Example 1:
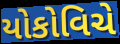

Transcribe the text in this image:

યોકોવિચે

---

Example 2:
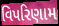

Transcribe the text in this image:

વિપરિણામ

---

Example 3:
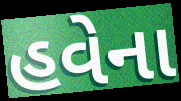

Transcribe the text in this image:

હવેના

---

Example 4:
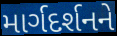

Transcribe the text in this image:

માર્ગદર્શનને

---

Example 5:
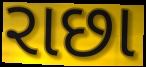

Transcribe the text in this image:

રાછા